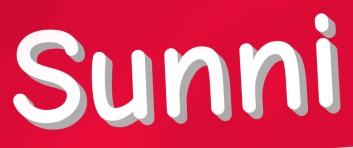
Sunni